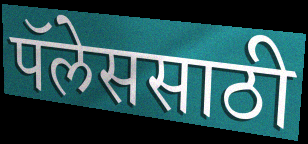
पॅलेससाठी